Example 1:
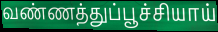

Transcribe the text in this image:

வண்ணத்துப்பூச்சியாய்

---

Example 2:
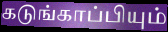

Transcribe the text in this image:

கடுங்காப்பியும்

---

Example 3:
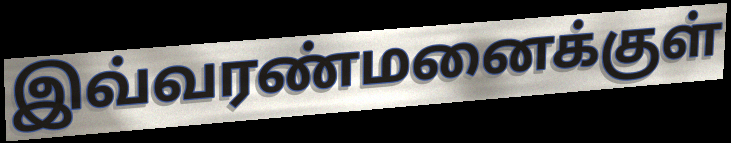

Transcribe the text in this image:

இவ்வரண்மனைக்குள்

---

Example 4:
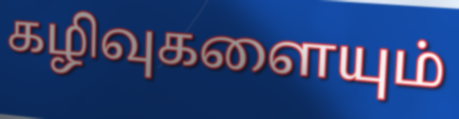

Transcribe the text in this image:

கழிவுகளையும்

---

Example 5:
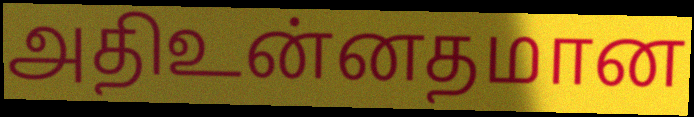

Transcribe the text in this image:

அதிஉன்னதமான